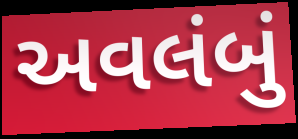
અવલંબું